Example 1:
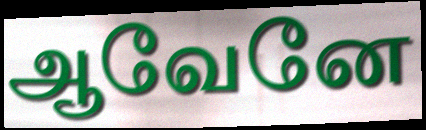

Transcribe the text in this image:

ஆவேனே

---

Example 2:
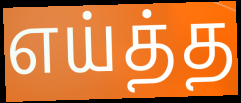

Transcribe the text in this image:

எய்த்த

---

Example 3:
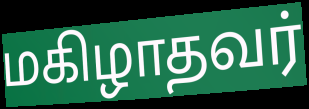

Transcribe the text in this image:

மகிழாதவர்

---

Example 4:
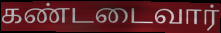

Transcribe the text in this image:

கண்டடைவார்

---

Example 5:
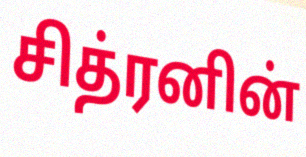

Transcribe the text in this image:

சித்ரனின்